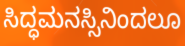
ಸಿದ್ಧಮನಸ್ಸಿನಿಂದಲೂ